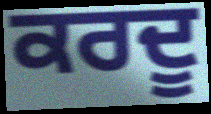
ਕਰਦੂ